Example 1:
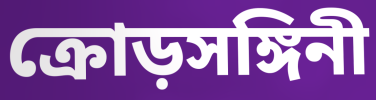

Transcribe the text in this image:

ক্রোড়সঙ্গিনী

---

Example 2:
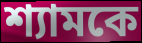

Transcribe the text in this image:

শ্যামকে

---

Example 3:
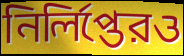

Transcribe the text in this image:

নির্লিপ্তেরও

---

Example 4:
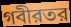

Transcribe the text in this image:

গবীরতর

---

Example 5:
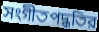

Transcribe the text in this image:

সংগীতপদ্ধতির